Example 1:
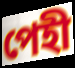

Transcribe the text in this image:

পেহী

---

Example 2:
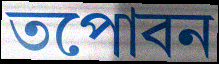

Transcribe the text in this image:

তপোবন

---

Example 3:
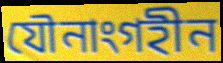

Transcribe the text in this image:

যৌনাংগহীন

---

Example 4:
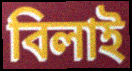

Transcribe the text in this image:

বিলাই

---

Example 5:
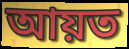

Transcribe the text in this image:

আয়ত